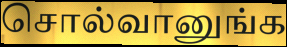
சொல்வானுங்க